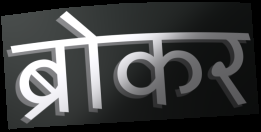
ब्रोकर